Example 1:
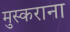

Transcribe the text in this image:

मुस्कराना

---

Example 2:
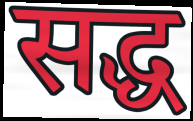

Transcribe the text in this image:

सद्ध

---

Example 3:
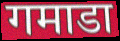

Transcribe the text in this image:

गमाडा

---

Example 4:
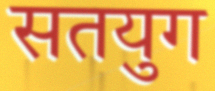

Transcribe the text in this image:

सतयुग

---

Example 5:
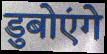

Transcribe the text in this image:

डुबोएंगे